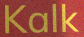
Kalk